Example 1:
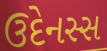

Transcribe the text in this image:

ઉદેનસ્સ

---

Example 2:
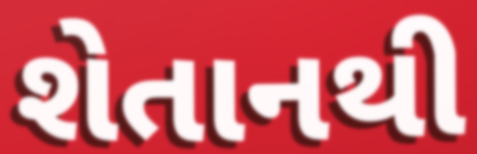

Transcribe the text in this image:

શેતાનથી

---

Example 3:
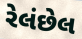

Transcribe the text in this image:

રેલંછેલ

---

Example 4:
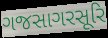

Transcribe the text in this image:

ગજસાગરસૂરિ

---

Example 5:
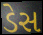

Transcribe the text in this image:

ડેસ